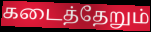
கடைத்தேறும்